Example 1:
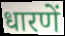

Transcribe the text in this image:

धारणें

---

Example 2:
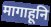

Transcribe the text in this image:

मागाहूनि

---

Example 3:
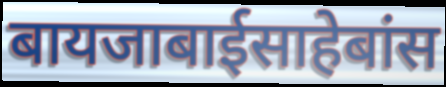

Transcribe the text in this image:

बायजाबाईसाहेबांस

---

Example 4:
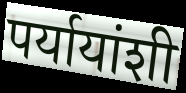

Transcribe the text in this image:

पर्यायांशी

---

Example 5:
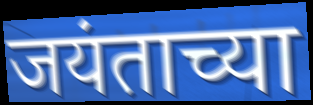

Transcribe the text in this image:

जयंताच्या